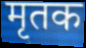
मृतक